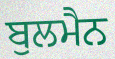
ਬੁਲਮੈਨ